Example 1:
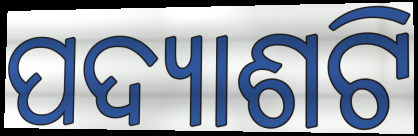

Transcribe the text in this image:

ପଦ୍ୟାଶଟି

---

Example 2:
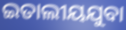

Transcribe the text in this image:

ଇତାଲୀୟଯୁବା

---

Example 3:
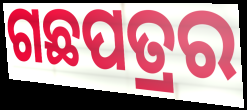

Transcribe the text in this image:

ଗଛପତ୍ରର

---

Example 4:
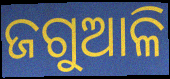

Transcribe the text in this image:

ଜଗୁଆଳି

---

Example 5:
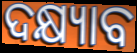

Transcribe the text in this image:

ଦକ୍ଷ୍ୟାବ